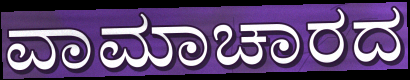
ವಾಮಾಚಾರದ